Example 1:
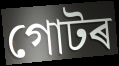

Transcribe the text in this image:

গোটৰ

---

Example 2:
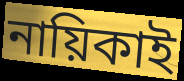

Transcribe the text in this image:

নায়িকাই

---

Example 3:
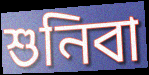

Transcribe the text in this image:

শুনিবা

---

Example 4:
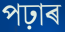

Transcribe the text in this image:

পঢ়াৰ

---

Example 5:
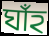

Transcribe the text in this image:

ঘাঁহ